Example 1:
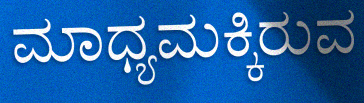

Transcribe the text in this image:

ಮಾಧ್ಯಮಕ್ಕಿರುವ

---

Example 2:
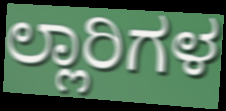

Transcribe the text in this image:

ಲ್ಲಾರಿಗಳ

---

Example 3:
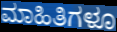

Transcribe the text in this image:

ಮಾಹಿತಿಗಳೂ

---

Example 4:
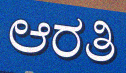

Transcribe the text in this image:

ಆರತಿ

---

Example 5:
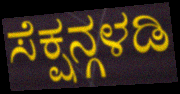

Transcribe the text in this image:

ಸೆಕ್ಷನ್ಗಳಡಿ